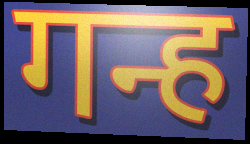
गन्ह